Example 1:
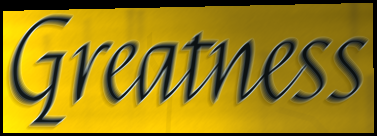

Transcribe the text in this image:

Greatness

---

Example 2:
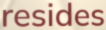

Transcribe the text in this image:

resides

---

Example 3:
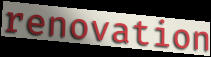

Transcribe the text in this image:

renovation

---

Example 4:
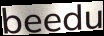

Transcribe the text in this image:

beedu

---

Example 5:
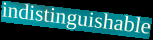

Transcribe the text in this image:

indistinguishable